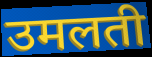
उमलती